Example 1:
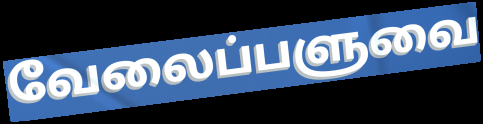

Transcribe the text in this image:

வேலைப்பளுவை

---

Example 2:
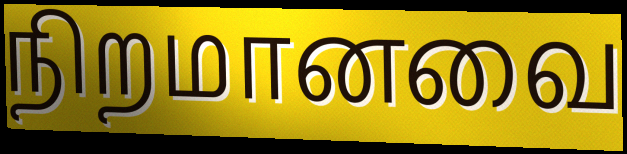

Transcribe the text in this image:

நிறமானவை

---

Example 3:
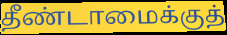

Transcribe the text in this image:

தீண்டாமைக்குத்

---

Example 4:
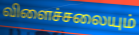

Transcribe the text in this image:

விளைச்சலையும்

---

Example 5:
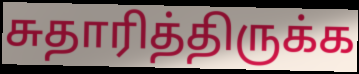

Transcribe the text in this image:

சுதாரித்திருக்க